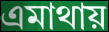
এমাথায়